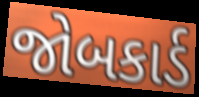
જોબકાર્ડ